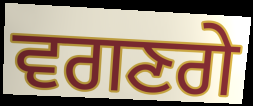
ਵਗਣਗੇ